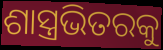
ଶାସ୍ତ୍ରଭିତରକୁ